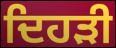
ਦਿਹੜੀ